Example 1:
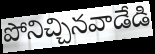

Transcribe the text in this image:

పోనిచ్చినవాడేడి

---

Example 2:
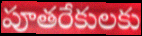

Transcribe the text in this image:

పూతరేకులకు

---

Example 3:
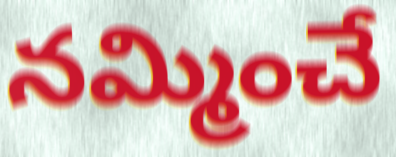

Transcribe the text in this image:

నమ్మించే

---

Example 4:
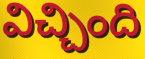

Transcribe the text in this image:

విచ్చింది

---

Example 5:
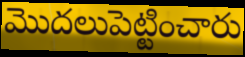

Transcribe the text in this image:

మొదలుపెట్టించారు